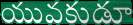
యువకుడూ